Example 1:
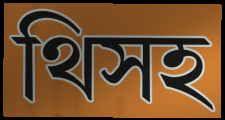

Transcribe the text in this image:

থিসহ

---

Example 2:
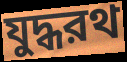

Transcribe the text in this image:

যুদ্ধরথ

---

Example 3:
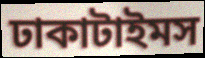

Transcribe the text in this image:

ঢাকাটাইমস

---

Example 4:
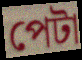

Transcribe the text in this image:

পেটা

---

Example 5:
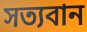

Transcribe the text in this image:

সত্যবান